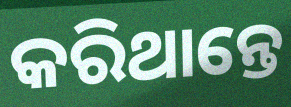
କରିଥାନ୍ତେ